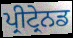
ਪ੍ਰੀਟ੍ਰੇਨਡ